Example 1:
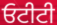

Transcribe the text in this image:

ਓਟੀਟੀ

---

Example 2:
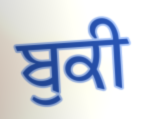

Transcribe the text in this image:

ਬੁਕੀ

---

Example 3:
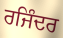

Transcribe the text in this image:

ਰਜਿੰਦਰ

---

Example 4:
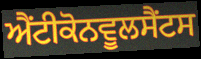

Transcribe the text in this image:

ਐਂਟੀਕੋਨਵੂਲਸੈਂਟਸ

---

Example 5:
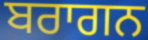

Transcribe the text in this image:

ਬਰਾਗਨ